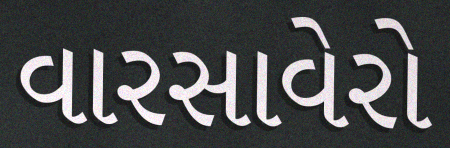
વારસાવેરો